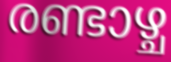
രണ്ടാഴ്ച